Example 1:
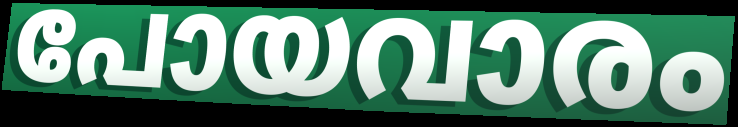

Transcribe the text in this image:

പോയവാരം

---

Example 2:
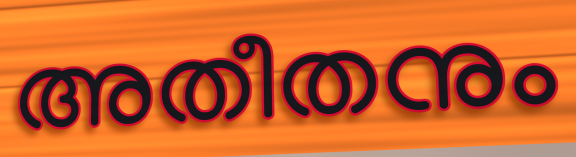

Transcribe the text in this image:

അതീതനും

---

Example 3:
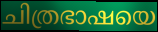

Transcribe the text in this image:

ചിത്രഭാഷയെ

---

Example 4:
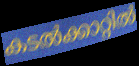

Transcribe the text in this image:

കടൽക്കാറ്റിൽ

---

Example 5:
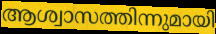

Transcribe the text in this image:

ആശ്വാസത്തിന്നുമായി